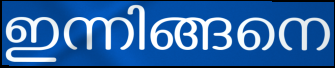
ഇന്നിങ്ങനെ